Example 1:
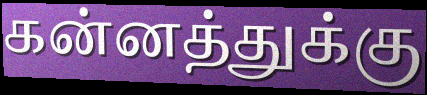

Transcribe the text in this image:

கன்னத்துக்கு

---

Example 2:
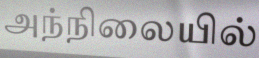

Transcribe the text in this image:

அந்நிலையில்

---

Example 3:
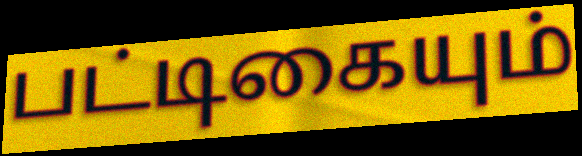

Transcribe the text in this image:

பட்டிகையும்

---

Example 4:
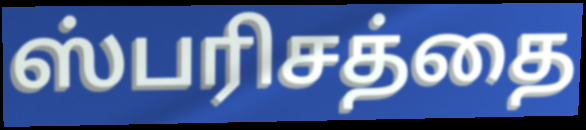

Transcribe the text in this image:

ஸ்பரிசத்தை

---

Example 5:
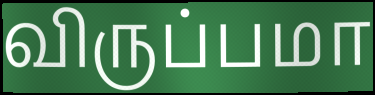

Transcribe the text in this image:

விருப்பமா